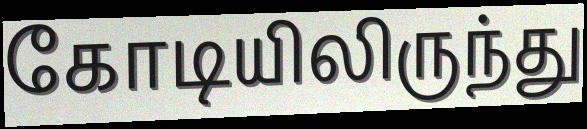
கோடியிலிருந்து